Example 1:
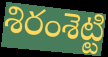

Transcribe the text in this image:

శిరంశెట్టి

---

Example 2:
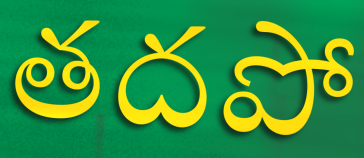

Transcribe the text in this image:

తదపో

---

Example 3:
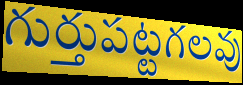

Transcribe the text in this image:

గుర్తుపట్టగలవు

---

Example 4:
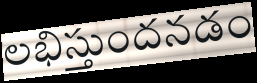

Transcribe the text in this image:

లభిస్తుందనడం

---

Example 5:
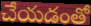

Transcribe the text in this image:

చేయడంతో